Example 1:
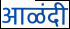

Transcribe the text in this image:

आळंदी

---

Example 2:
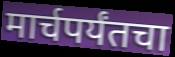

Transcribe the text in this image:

मार्चपर्यंतचा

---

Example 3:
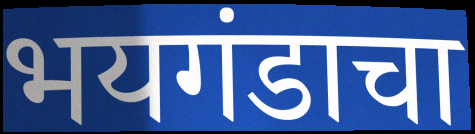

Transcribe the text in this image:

भयगंडाचा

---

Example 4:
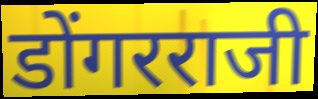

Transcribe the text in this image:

डोंगरराजी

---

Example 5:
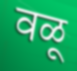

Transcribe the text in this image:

वळू